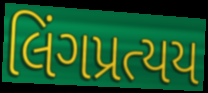
લિંગપ્રત્યય